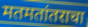
मतमतांतराचा